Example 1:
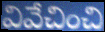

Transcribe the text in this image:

వివేచించి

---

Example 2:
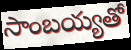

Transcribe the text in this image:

సాంబయ్యతో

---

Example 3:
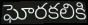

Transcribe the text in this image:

ఘోరకలికి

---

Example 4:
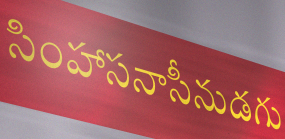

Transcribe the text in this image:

సింహాసనాసీనుడగు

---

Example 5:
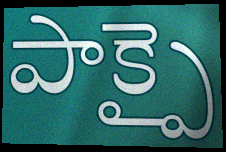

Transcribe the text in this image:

పాక్పై